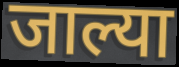
जाल्या